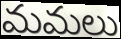
మమలు